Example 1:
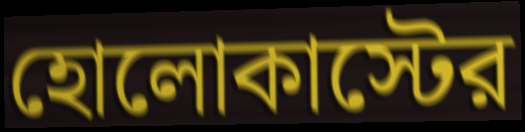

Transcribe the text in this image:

হোলোকাস্টের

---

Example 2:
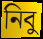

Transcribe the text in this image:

নিবু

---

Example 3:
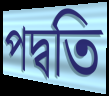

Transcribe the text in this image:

পদ্বতি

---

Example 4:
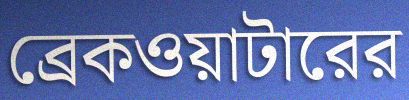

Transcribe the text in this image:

ব্রেকওয়াটারের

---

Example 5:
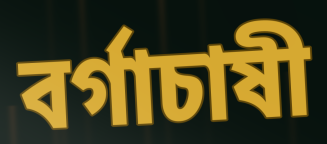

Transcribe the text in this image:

বর্গাচাষী